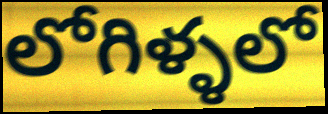
లోగిళ్ళలో